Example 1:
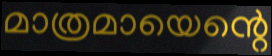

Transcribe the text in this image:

മാത്രമായെന്റെ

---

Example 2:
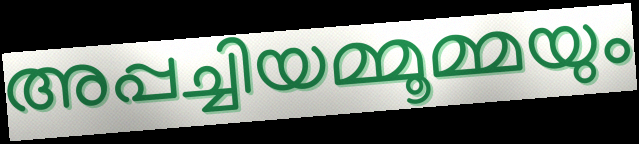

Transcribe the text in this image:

അപ്പച്ചിയമ്മൂമ്മയും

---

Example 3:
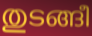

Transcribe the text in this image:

തുടങ്ങീ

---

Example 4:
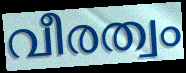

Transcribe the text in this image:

വീരത്വം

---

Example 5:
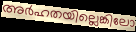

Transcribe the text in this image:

അർഹതയില്ലെങ്കിലോ